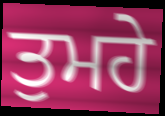
ਤੁਮਹੇ